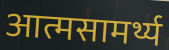
आत्मसामर्थ्य